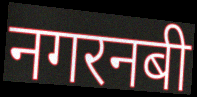
नगरनबी